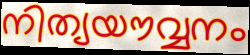
നിത്യയൗവ്വനം